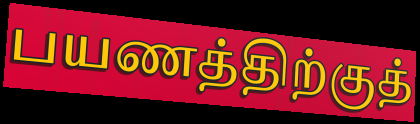
பயணத்திற்குத்